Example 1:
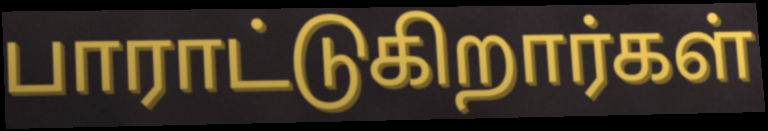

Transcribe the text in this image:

பாராட்டுகிறார்கள்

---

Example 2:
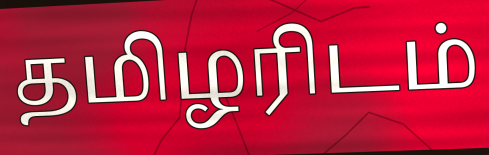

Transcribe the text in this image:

தமிழரிடம்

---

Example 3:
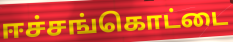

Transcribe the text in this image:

ஈச்சங்கொட்டை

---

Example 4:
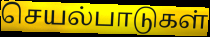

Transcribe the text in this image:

செயல்பாடுகள்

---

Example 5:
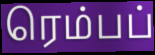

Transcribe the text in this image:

ரெம்பப்